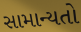
સામાન્યતો